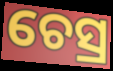
ଚେସ୍ର